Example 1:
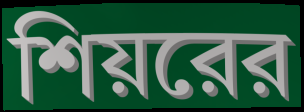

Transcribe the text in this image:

শিয়রের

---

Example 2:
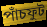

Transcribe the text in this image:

পাঁচফুট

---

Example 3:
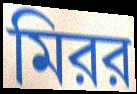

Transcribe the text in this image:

মিরর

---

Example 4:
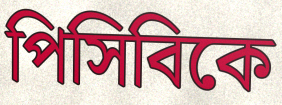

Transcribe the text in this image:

পিসিবিকে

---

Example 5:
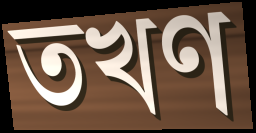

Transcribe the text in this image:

তখণ